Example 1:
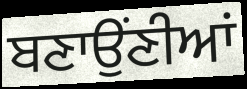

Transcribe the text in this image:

ਬਣਾਉਂਣੀਆਂ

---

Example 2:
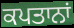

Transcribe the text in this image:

ਕਪਤਾਨਾਂ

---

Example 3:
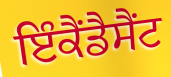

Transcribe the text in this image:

ਇੰਕੈਂਡੈਸੈਂਟ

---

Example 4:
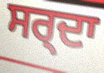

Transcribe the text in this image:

ਸਰ੍ਦਾ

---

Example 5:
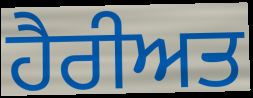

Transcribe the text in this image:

ਹੈਰੀਅਤ